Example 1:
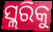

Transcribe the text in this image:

ସ୍ଲରିକୁ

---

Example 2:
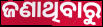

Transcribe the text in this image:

ଜଣାଥିବାରୁ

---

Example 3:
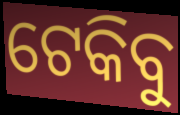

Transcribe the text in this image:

ଟେକିବୁ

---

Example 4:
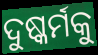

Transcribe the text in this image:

ଦୁଷ୍କର୍ମକୁ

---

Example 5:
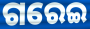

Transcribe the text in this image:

ଗରେଇ